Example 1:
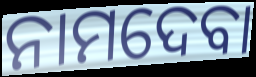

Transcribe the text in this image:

ନାମଦେବା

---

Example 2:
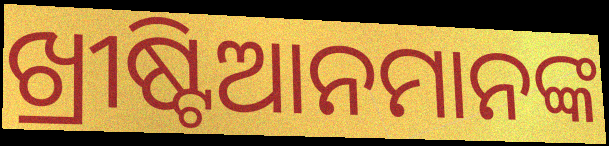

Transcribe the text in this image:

ଖ୍ରୀଷ୍ଟିଆନମାନଙ୍କ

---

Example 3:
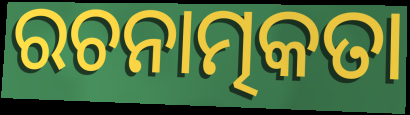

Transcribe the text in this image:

ରଚନାତ୍ମକତା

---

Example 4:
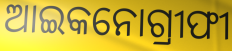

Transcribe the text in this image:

ଆଇକନୋଗ୍ରୀଫୀ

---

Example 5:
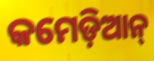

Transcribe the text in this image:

କମେଡ଼ିଆନ୍